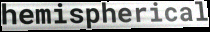
hemispherical